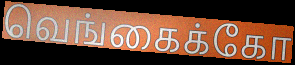
வெங்கைக்கோ